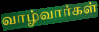
வாழ்வார்கள்